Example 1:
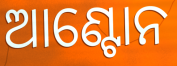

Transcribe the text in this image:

ଆଣ୍ଟୋନ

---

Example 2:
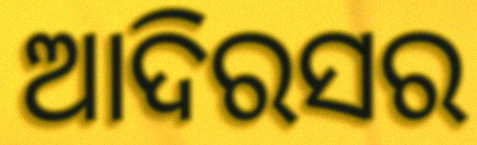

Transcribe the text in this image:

ଆଦିରସର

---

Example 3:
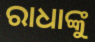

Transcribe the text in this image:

ରାଧାଙ୍କୁ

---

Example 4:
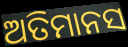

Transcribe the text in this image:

ଅତିମାନସ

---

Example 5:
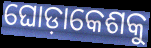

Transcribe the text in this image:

ଘୋଡ଼ାକେଶକୁ